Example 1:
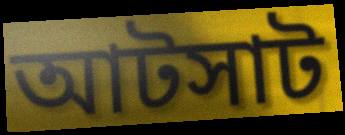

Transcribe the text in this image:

আটসাট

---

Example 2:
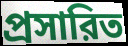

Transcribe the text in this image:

প্রসারিত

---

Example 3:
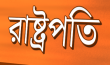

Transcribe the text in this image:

রাষ্ট্রপতি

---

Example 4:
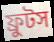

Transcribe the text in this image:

ফ্রুটস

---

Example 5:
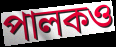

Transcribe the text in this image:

পালকও